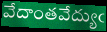
వేదాంతవేద్యుఁ